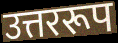
उत्तररूप